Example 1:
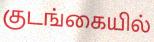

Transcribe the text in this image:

குடங்கையில்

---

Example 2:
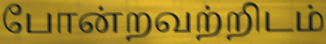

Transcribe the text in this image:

போன்றவற்றிடம்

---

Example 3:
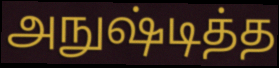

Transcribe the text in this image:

அநுஷ்டித்த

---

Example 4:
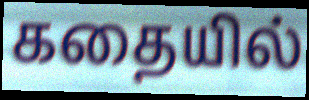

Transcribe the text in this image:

கதையில்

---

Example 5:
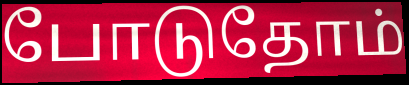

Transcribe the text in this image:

போடுதோம்